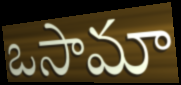
ఒసామా